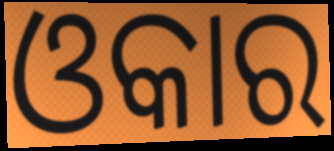
ଓକାର